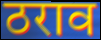
ठराव